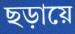
ছড়ায়ে